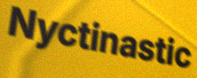
Nyctinastic